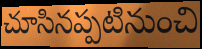
చూసినప్పటినుంచి